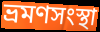
ভ্রমণসংস্থা